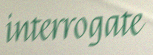
interrogate